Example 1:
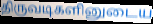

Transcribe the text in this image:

திருவடிகளினுடைய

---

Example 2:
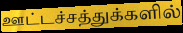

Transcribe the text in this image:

ஊட்டச்சத்துக்களில்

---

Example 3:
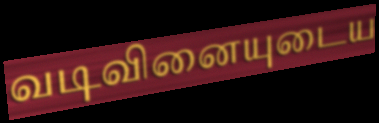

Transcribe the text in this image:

வடிவினையுடைய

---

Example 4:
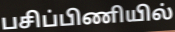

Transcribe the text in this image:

பசிப்பிணியில்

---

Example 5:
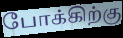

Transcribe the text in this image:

போக்கிற்கு